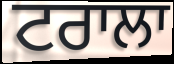
ਟਰਾਲਾ